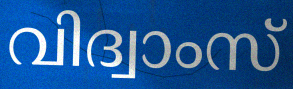
വിദ്വാംസ്